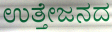
ಉತ್ತೇಜನದ